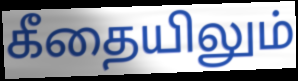
கீதையிலும்